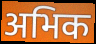
अभिक